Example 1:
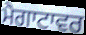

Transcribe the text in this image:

ਮੈਗਾਟਾਵਰ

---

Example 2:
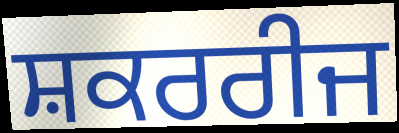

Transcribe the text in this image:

ਸ਼ਕਰਰੀਜ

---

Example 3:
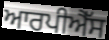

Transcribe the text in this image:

ਆਰਪੀਐੱਸ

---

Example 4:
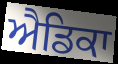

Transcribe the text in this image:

ਐਡਿਕਾ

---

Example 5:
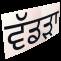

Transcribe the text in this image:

ਵੱਡਡ਼ਾ